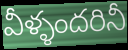
వీళ్ళందరినీ